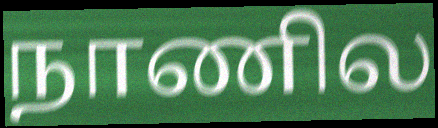
நாணில